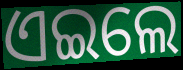
ଏଇଲେ